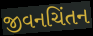
જીવનચિંતન